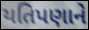
યતિપણાને